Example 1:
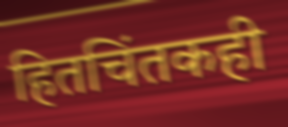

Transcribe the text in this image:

हितचिंतकही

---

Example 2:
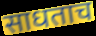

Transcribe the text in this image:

साधताच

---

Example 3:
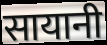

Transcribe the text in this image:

सायानी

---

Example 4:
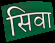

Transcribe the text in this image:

सिवा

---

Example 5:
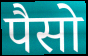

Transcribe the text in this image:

पैसो